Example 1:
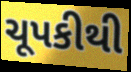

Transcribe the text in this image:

ચૂપકીથી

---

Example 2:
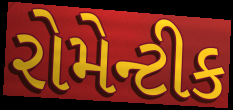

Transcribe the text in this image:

રોમેન્ટીક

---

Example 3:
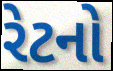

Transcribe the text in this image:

રેટનો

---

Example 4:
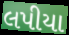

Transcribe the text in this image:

લપીયા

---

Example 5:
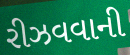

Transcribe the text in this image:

રીઝવવાની